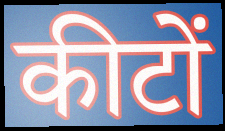
कीटों